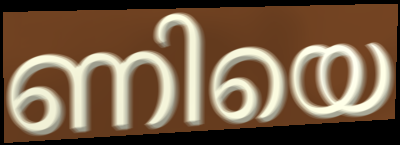
ണിയെ